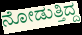
ನೋಡುತ್ತಿದ್ದ